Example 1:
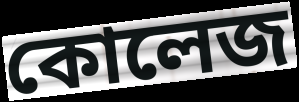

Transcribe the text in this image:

কোলেজ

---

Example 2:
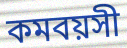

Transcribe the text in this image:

কমবয়সী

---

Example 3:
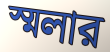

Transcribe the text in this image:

স্মলার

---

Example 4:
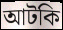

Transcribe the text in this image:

আটকি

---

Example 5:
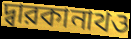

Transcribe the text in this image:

দ্বারকানাথও